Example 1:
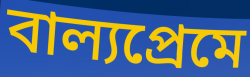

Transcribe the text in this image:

বাল্যপ্রেমে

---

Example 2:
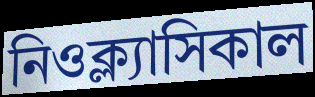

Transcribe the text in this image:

নিওক্ল্যাসিকাল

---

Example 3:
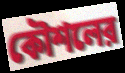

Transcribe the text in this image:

কৌশলের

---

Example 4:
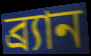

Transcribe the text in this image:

ব্র্যান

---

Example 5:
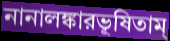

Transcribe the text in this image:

নানালঙ্কারভূষিতাম্